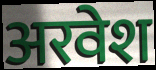
अरवेश